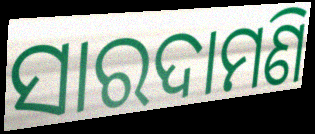
ସାରଦାମଣି